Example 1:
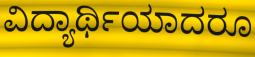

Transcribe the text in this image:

ವಿದ್ಯಾರ್ಥಿಯಾದರೂ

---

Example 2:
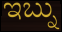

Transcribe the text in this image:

ಇಬ್ನು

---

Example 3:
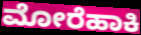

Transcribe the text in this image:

ಮೋರೆಹಾಕಿ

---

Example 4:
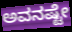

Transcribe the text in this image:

ಅವನಷ್ಟೇ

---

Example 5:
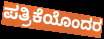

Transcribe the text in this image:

ಪತ್ರಿಕೆಯೊಂದರ